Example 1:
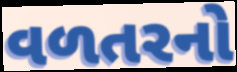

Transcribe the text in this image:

વળતરનો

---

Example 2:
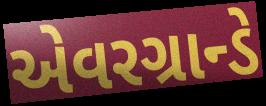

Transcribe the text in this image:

એવરગ્રાન્ડે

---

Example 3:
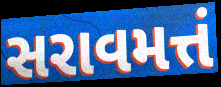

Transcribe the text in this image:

સરાવમત્તં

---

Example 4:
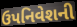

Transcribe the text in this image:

ઉપનિવેશની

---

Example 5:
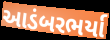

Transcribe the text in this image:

આડંબરભર્યા